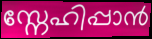
സ്നേഹിപ്പാൻ